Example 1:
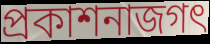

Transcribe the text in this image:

প্রকাশনাজগৎ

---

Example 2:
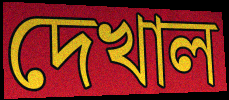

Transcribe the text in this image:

দেখাল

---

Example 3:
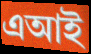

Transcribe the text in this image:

এআই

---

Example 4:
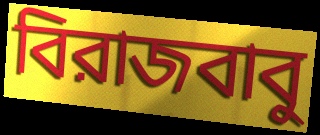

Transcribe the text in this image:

বিরাজবাবু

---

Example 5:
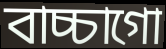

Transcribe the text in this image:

বাচ্চাগো